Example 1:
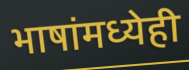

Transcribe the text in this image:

भाषांमध्येही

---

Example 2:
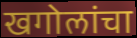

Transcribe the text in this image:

खगोलांचा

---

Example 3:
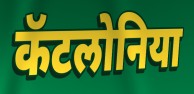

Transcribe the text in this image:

कॅटलोनिया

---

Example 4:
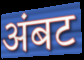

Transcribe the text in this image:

अंबट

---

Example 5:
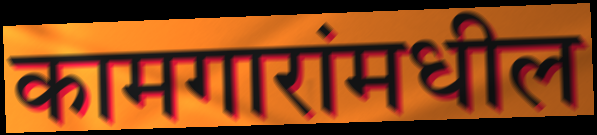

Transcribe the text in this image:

कामगारांमधील